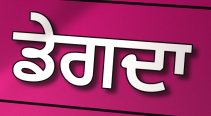
ਡੇਗਦਾ